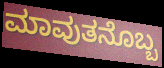
ಮಾವುತನೊಬ್ಬ